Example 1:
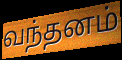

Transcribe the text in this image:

வந்தனம்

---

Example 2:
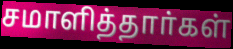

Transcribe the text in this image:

சமாளித்தார்கள்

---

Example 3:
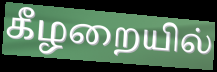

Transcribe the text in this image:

கீழறையில்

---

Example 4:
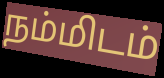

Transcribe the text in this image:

நம்மிடம்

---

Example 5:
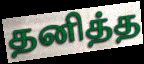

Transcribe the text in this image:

தனித்த